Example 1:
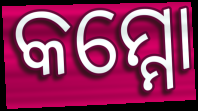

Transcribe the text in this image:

କମ୍ମୋ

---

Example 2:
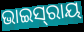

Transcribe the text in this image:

ଭାଇସ୍‍ରାୟ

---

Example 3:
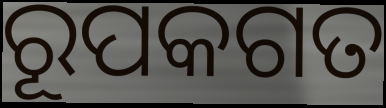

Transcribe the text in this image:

ରୂପକଗତ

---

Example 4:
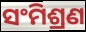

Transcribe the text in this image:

ସଂମିଶ୍ରଣ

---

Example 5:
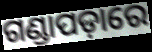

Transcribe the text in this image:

ଗଣ୍ଡାପଡ଼ାରେ